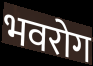
भवरोग